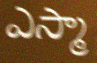
ఎస్మా